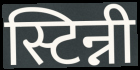
स्टिन्नी